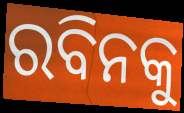
ରବିନକୁ